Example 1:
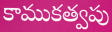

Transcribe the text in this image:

కాముకత్వపు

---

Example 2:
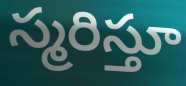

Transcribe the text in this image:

స్మరిస్తూ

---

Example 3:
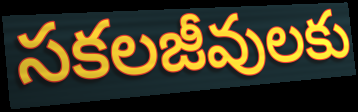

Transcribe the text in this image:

సకలజీవులకు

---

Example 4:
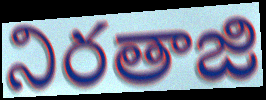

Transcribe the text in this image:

నిరతాజి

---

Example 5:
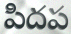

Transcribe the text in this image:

పిదప